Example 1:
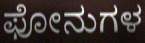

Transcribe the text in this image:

ಫೋನುಗಳ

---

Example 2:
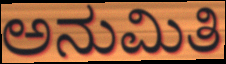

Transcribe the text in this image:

ಅನುಮಿತಿ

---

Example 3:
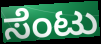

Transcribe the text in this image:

ಸೆಂಟು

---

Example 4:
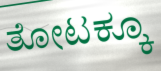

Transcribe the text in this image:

ತೋಟಕ್ಕೂ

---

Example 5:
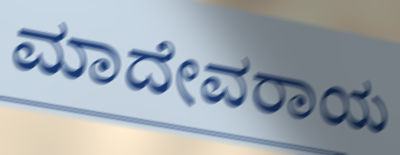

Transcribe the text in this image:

ಮಾದೇವರಾಯ